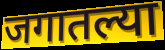
जगातल्या